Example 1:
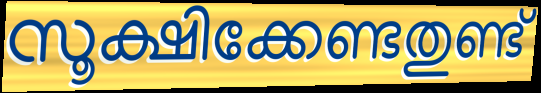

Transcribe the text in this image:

സൂക്ഷിക്കേണ്ടതുണ്ട്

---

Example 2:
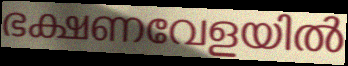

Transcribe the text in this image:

ഭക്ഷണവേളയിൽ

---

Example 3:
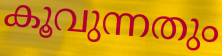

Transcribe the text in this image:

കൂവുന്നതും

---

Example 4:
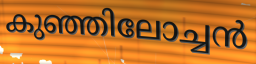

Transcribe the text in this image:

കുഞ്ഞിലോച്ചൻ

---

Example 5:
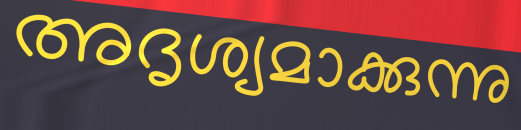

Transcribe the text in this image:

അദൃശ്യമാക്കുന്നു